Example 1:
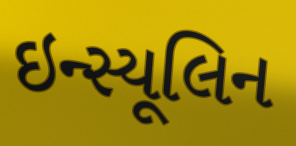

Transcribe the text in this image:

ઇન્સ્યૂલિન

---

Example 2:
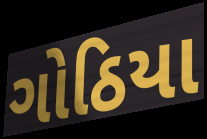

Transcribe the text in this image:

ગોઠિયા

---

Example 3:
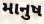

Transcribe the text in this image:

માનુષ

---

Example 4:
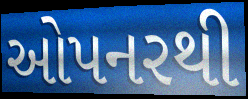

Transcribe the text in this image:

ઓપનરથી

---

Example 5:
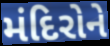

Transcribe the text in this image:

મંદિરોને